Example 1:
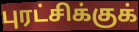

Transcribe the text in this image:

புரட்சிக்குக்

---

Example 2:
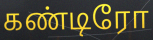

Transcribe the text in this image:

கண்டிரோ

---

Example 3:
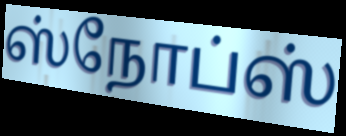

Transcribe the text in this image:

ஸ்நோப்ஸ்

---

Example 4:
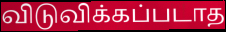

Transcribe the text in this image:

விடுவிக்கப்படாத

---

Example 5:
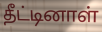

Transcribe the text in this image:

தீட்டினாள்